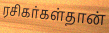
ரசிகர்கள்தான்